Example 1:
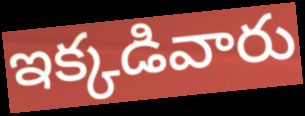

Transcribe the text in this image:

ఇక్కడివారు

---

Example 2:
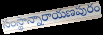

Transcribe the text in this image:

సంస్థాన్నారాయణపురం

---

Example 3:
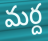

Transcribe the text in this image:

మర్ద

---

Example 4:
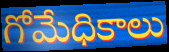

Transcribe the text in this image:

గోమేధికాలు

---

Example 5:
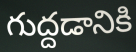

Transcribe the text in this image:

గుద్దడానికి